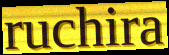
ruchira